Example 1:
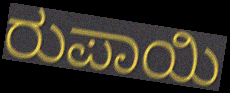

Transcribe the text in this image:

ರುಪಾಯಿ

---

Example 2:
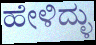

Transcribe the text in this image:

ಹೇಳಿದ್ಳು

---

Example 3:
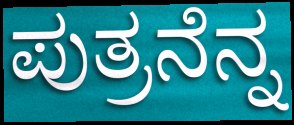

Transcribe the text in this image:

ಪುತ್ರನೆನ್ನ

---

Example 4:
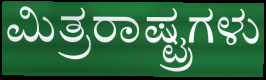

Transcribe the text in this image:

ಮಿತ್ರರಾಷ್ಟ್ರಗಳು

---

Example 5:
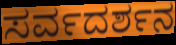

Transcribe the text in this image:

ಸರ್ವದರ್ಶನ